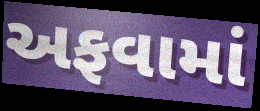
અફવામાં